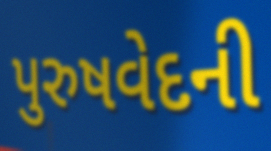
પુરુષવેદની